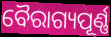
ବୈରାଗ୍ୟପୂର୍ଣ୍ଣ